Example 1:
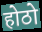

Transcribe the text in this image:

होठो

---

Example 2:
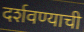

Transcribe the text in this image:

दर्शवण्याची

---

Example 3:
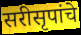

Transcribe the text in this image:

सरीसृपांचे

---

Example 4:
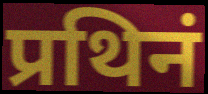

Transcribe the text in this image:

प्रथिनं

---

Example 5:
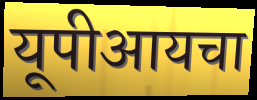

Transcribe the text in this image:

यूपीआयचा